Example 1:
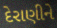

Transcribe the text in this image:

દેરાણીને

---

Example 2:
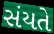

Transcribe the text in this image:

સંયતે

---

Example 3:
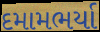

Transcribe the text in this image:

દમામભર્યા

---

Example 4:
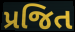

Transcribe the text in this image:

પ્રજિત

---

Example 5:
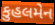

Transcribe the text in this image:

કુહલમેન